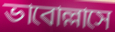
ভাবোল্লাসে